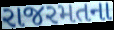
રાજરમતના